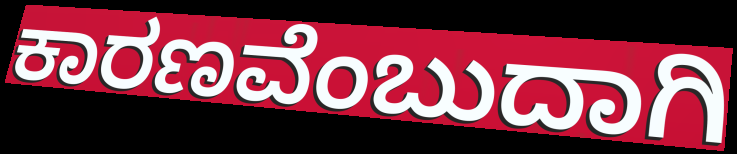
ಕಾರಣವೆಂಬುದಾಗಿ